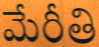
మేరీతి